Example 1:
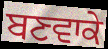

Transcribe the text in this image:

ਬਣਵਾਕੇ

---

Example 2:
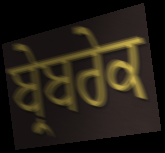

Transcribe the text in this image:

ਬ੍ਰੇਬਰੇਕ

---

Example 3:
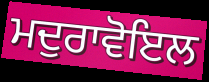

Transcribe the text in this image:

ਮਦੁਰਾਵੋਇਲ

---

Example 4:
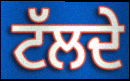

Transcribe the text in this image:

ਟੱਲਦੇ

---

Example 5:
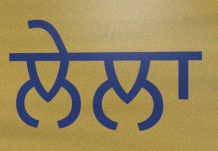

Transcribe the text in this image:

ਲੇਲਾ